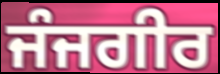
ਜੰਜਗੀਰ